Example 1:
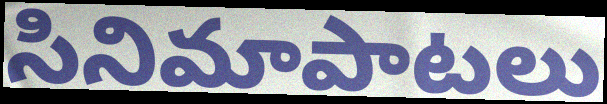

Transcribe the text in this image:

సినిమాపాటలు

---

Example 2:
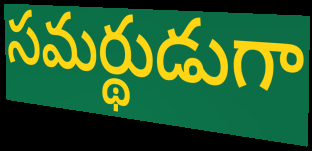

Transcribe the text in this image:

సమర్థుడుగా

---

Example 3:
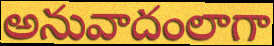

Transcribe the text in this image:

అనువాదంలాగా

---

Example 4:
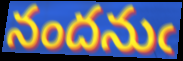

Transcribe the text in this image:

నందనుఁ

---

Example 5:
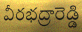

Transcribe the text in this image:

వీరభద్రారెడ్డి